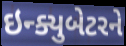
ઇન્ક્યુબેટરને